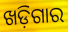
ଖଡ଼ିଗାର